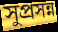
সুপ্রসন্ন